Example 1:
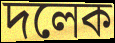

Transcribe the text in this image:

দলেক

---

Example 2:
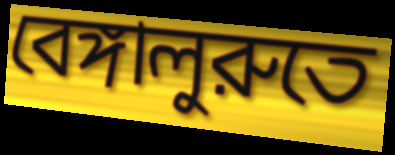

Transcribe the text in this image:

বেঙ্গালুরুতে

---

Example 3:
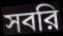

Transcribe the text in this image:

সবরি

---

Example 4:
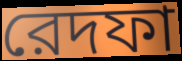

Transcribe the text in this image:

রেদফা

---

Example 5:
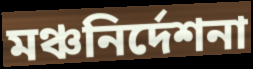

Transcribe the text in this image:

মঞ্চনির্দেশনা